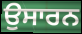
ਉਸਾਰਨ